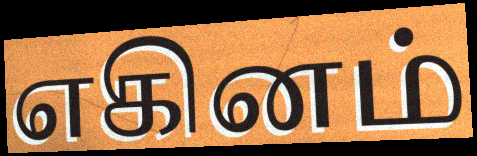
எகினம்